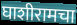
घाशीरामचा